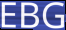
EBG